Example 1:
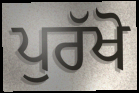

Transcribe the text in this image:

ਪੁਰੱਖੋ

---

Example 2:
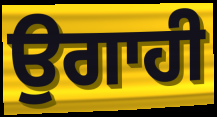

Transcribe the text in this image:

ਉਗਾਹੀ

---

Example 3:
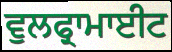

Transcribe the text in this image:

ਵੁਲਫ੍ਰਾਮਾਈਟ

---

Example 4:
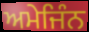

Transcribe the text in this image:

ਅਮੇਜਿੰਨ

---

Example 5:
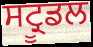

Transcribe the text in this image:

ਸਟ੍ਰੂਡਲ